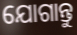
ଯୋଗାନ୍ତୁ